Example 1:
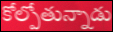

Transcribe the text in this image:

కోల్పోతున్నాడు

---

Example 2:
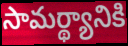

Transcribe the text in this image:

సామర్థ్యానికి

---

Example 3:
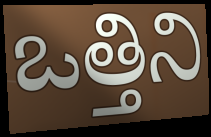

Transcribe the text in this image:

ఒత్తిని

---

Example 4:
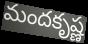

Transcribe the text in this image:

మందకృష్ణ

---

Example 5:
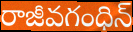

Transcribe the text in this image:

రాజీవగంధిన్